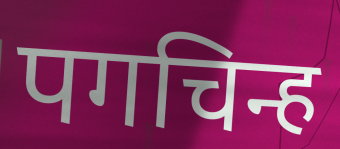
पगचिन्ह